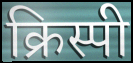
क्रिस्पी